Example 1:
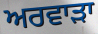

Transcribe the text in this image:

ਅਰਵਾੜਾ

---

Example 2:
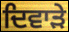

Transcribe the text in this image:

ਦਿਵਾੜੇ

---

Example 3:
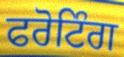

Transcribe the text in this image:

ਫਰੋਟਿੰਗ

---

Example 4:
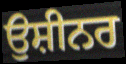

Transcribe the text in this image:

ਉਸ਼ੀਨਰ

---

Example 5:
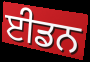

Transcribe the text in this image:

ਈਡਨ